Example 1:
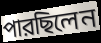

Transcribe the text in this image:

পারছিলেন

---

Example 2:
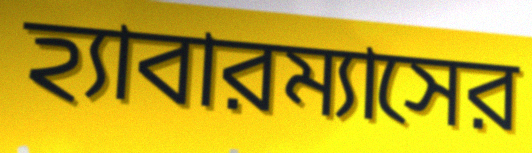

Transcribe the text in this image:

হ্যাবারম্যাসের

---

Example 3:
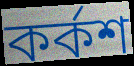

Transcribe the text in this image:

কর্কশ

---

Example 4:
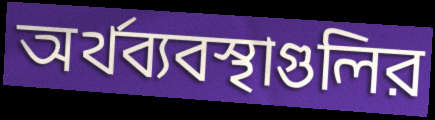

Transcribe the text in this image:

অর্থব্যবস্থাগুলির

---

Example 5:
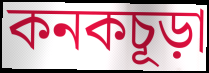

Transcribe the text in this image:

কনকচূড়া